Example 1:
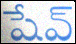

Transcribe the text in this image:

షేవ్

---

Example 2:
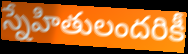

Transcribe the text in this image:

స్నేహితులందరికీ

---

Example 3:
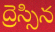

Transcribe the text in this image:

ద్రెస్సిన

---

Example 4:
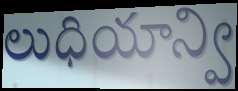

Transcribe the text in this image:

లుధియాన్వి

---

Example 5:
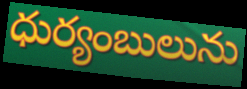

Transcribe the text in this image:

ధుర్యంబులును